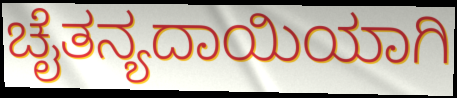
ಚೈತನ್ಯದಾಯಿಯಾಗಿ